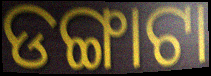
ଡଙ୍ଗାଟା